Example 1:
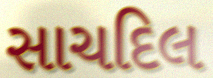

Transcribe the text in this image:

સાચદિલ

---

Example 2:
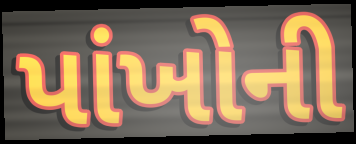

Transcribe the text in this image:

પાંખોની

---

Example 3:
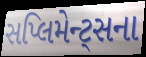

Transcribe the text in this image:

સપ્લિમેન્ટ્સના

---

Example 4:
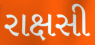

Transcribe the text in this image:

રાક્ષસી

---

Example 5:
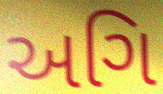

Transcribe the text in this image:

અગિ